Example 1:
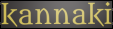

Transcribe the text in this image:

kannaki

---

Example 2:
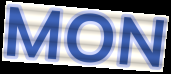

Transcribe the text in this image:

MON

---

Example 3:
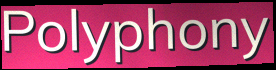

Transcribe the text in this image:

Polyphony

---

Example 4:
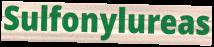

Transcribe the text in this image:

Sulfonylureas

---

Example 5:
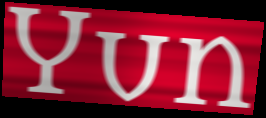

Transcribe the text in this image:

Yun